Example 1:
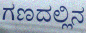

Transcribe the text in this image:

ಗಣದಲ್ಲಿನ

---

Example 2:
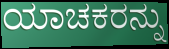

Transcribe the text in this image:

ಯಾಚಕರನ್ನು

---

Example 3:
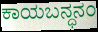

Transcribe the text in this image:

ಕಾಯಬನ್ಧನಂ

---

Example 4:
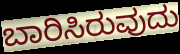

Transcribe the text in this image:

ಬಾರಿಸಿರುವುದು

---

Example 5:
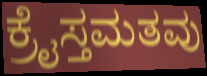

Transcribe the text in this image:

ಕ್ರೈಸ್ತಮತವು